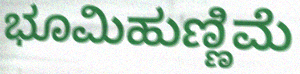
ಭೂಮಿಹುಣ್ಣಿಮೆ